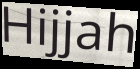
Hijjah